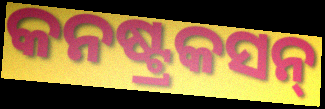
କନଷ୍ଟ୍ରକସନ୍